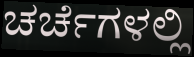
ಚರ್ಚೆಗಳಲ್ಲಿ